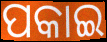
ପକାଇ